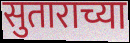
सुताराच्या